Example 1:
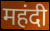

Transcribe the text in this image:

महंदी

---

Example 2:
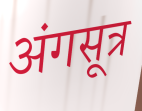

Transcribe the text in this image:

अंगसूत्र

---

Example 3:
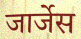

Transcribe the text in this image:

जार्जेस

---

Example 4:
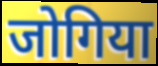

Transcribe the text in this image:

जोगिया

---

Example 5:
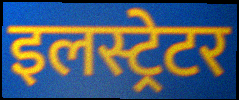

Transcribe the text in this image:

इलस्ट्रेटर